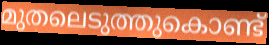
മുതലെടുത്തുകൊണ്ട്